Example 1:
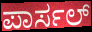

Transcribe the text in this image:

ಪಾರ್ಸಲ್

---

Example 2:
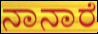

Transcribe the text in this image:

ನಾನಾರೆ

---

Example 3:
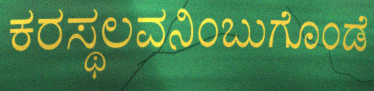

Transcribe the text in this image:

ಕರಸ್ಥಲವನಿಂಬುಗೊಂಡೆ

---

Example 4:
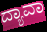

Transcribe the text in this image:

ದ್ಯಾವಾ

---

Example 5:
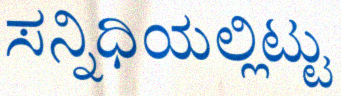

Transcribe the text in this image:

ಸನ್ನಿಧಿಯಲ್ಲಿಟ್ಟು